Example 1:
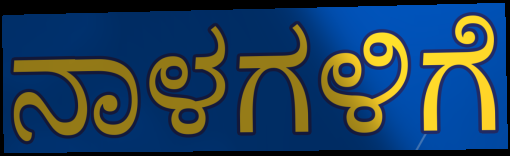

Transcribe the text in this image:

ನಾಳಗಳಿಗೆ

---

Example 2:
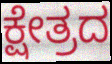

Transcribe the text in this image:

ಕ್ಷೇತ್ರದ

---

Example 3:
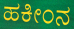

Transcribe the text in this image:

ಹಕೀಂನ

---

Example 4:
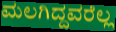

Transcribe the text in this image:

ಮಲಗಿದ್ದವರೆಲ್ಲ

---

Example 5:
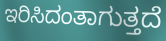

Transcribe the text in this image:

ಇರಿಸಿದಂತಾಗುತ್ತದೆ